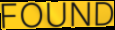
FOUND